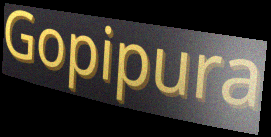
Gopipura